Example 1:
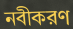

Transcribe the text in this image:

নবীকরণ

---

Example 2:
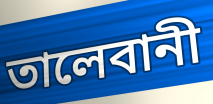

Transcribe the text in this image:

তালেবানী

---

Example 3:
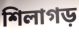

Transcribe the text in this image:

শিলাগড়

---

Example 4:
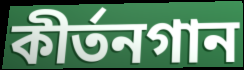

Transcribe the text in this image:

কীর্তনগান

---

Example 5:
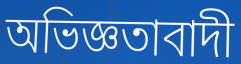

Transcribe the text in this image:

অভিজ্ঞতাবাদী